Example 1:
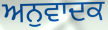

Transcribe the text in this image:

ਅਨੁਵਾਦਕ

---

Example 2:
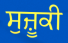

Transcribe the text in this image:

ਸੁਜ਼ੂਕੀ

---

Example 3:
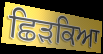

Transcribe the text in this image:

ਛਿੜਕਿਆ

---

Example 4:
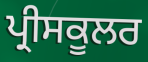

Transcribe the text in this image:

ਪ੍ਰੀਸਕੂਲਰ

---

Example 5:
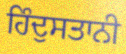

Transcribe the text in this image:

ਹਿੰਦੁਸਤਾਨੀ